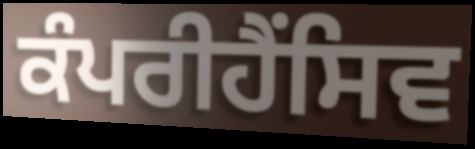
ਕੰਪਰੀਹੈਂਸਿਵ